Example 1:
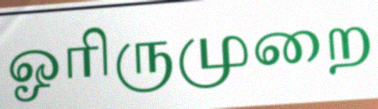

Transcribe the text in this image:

ஓரிருமுறை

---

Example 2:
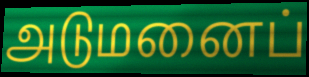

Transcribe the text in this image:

அடுமனைப்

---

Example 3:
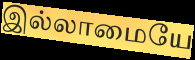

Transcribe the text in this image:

இல்லாமையே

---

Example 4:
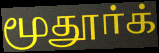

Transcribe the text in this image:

மூதூர்க்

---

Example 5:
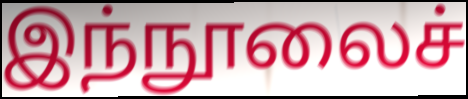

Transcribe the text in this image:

இந்நூலைச்